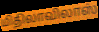
மிதிலாவிலாஸ்